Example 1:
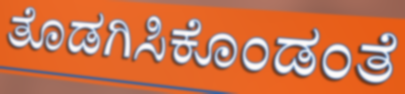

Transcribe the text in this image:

ತೊಡಗಿಸಿಕೊಂಡಂತೆ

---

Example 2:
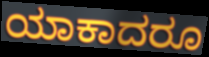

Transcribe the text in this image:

ಯಾಕಾದರೂ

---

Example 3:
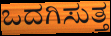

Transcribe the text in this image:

ಒದಗಿಸುತ್ತ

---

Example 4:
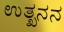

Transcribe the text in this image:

ಉತ್ಖನನ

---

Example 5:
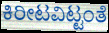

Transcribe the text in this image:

ಕಿರೀಟವಿಟ್ಟಂತೆ